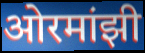
ओरमांझी